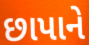
છાપાને